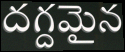
దగ్దమైన